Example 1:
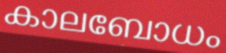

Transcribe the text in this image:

കാലബോധം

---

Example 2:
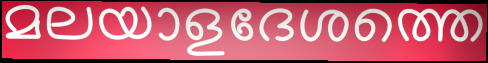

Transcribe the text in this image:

മലയാളദേശത്തെ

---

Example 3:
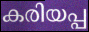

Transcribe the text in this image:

കരിയപ്പ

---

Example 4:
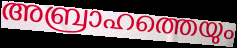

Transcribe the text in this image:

അബ്രാഹത്തെയും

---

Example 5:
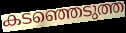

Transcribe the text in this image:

കടഞ്ഞെടുത്ത